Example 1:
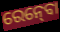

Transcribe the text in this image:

ରେନ୍‍ବୋ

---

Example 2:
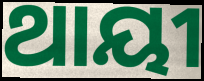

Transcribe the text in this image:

ଥାୟୀ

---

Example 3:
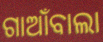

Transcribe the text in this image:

ଗାଆଁବାଲା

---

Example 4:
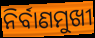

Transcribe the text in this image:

ନିର୍ବାଣମୁଖୀ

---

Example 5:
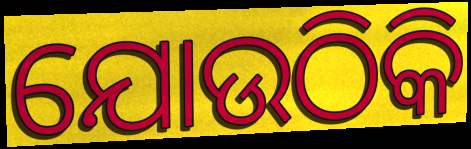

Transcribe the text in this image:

ଯୋଉଠିକି